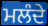
ਮਲੰਦੇ